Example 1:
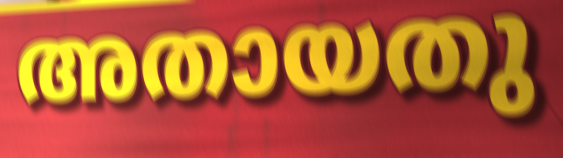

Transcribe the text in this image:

അതായതു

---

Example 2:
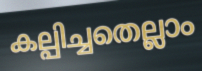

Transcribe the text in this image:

കല്പിച്ചതെല്ലാം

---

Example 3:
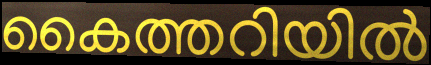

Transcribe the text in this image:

കൈത്തറിയിൽ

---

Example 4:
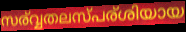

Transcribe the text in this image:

സര്വ്വതലസ്പര്ശിയായ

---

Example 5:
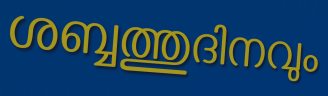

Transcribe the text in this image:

ശബ്ബത്തുദിനവും